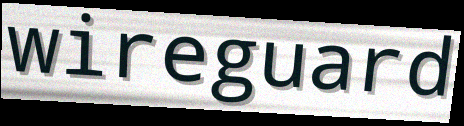
wireguard